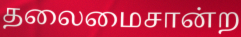
தலைமைசான்ற